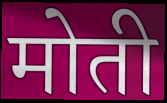
मोती